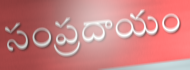
సంప్రదాయం